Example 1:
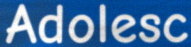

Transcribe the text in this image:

Adolesc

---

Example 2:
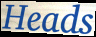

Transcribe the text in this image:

Heads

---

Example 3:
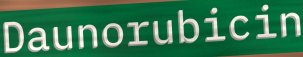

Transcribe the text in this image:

Daunorubicin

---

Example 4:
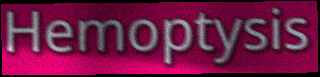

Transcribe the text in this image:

Hemoptysis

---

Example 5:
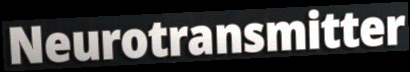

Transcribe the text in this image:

Neurotransmitter